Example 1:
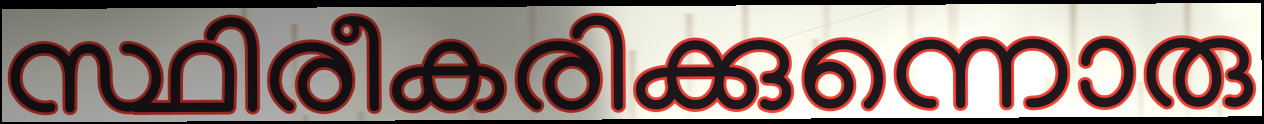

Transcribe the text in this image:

സ്ഥിരീകരിക്കുന്നൊരു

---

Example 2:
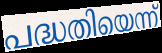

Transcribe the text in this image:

പദ്ധതിയെന്ന്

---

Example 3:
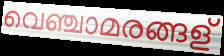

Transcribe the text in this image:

വെഞ്ചാമരങ്ങള്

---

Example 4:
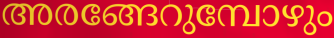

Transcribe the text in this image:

അരങ്ങേറുമ്പോഴും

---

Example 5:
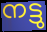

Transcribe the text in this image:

നട്ടു